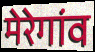
मेरेगांव